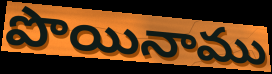
పొయినాము